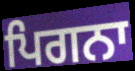
ਪਿਗਨਾ